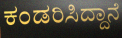
ಕಂಡರಿಸಿದ್ದಾನೆ